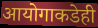
आयोगाकडेही